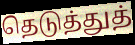
தெடுத்துத்